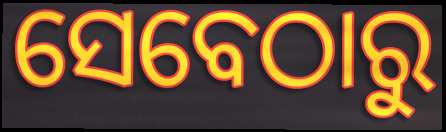
ସେବେଠାରୁ